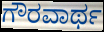
ಗೌರವಾರ್ಥ